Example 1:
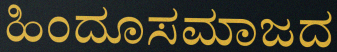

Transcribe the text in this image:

ಹಿಂದೂಸಮಾಜದ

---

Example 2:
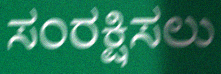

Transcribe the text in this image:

ಸಂರಕ್ಷಿಸಲು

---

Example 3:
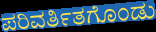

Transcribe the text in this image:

ಪರಿವರ್ತಿತಗೊಂಡು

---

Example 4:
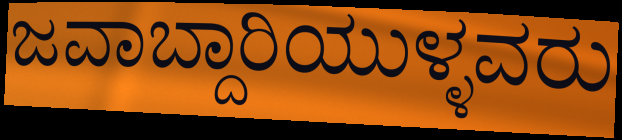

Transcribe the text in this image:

ಜವಾಬ್ದಾರಿಯುಳ್ಳವರು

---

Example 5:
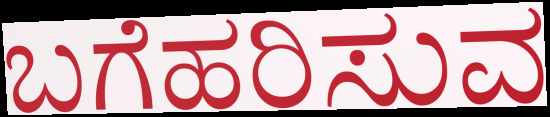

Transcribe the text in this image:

ಬಗೆಹರಿಸುವ